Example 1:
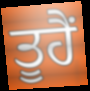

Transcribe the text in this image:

ਤੂਹੈਂ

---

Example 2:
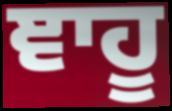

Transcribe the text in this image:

ਞਾਹੂ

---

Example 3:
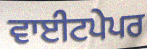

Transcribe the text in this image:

ਵਾਈਟਪੇਪਰ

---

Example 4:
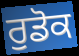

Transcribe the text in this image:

ਰੁਡੋਕ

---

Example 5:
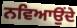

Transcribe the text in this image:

ਨਵਿਆਉਂਦੇ